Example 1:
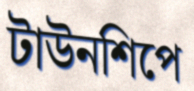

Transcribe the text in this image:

টাউনশিপে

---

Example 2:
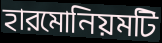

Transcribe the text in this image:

হারমোনিয়মটি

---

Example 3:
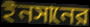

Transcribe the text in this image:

ইনসানের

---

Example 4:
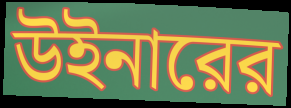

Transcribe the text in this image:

উইনারের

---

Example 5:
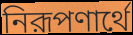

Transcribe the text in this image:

নিরূপণার্থে